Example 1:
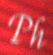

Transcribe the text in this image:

Ph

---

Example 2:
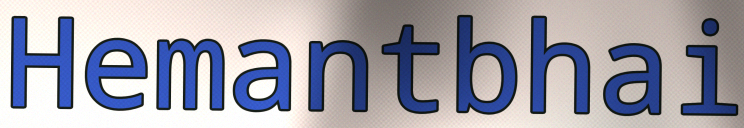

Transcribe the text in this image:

Hemantbhai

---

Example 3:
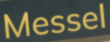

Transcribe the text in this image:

Messel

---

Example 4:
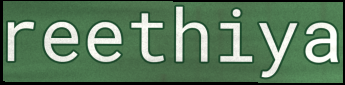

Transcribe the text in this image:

reethiya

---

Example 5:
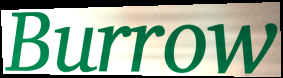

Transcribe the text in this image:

Burrow